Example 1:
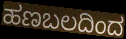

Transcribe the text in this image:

ಹಣಬಲದಿಂದ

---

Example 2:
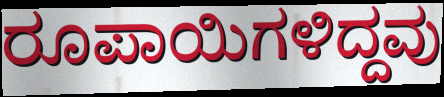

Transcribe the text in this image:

ರೂಪಾಯಿಗಳಿದ್ದವು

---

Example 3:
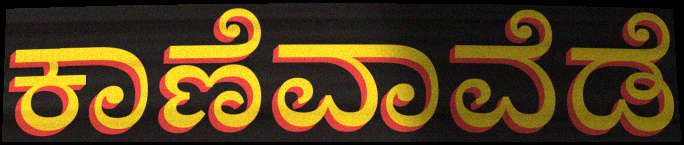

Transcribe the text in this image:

ಕಾಣೆವಾವೆಡೆ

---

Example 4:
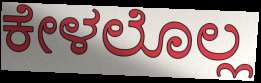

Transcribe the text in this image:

ಕೇಳಲೊಲ್ಲ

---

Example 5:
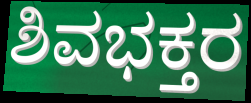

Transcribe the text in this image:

ಶಿವಭಕ್ತರ